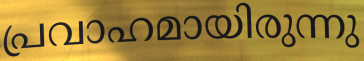
പ്രവാഹമായിരുന്നു